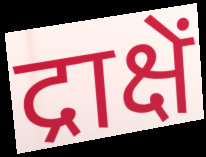
द्राक्षें